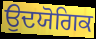
ਉਦਯੋਗਿਕ